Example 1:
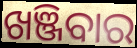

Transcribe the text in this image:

ଖଞ୍ଜିବାର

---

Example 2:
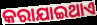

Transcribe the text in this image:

କରାଯାଇଥାଏ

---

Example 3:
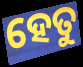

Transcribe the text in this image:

ହେତୁ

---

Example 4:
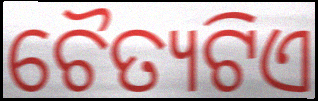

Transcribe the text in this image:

ଚୈତ୍ୟଟିଏ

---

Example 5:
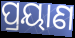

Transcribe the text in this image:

ପ୍ରୟାଣ